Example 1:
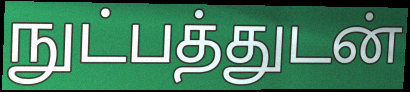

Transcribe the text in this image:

நுட்பத்துடன்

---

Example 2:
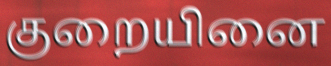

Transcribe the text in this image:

குறையினை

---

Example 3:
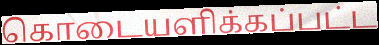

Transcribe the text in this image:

கொடையளிக்கப்பட்ட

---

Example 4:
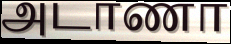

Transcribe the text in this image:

அடாணா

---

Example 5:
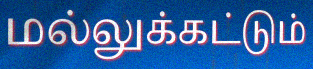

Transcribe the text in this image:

மல்லுக்கட்டும்